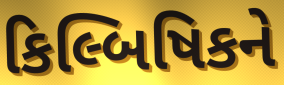
કિલ્બિષિકને